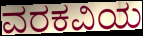
ವರಕವಿಯ